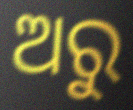
ଅରୁ